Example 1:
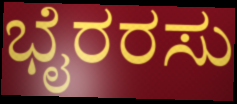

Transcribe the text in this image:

ಭೈರರಸು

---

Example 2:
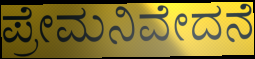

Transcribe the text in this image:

ಪ್ರೇಮನಿವೇದನೆ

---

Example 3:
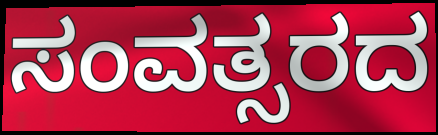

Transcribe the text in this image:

ಸಂವತ್ಸರದ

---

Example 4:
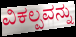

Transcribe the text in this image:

ವಿಕಲ್ಪವನ್ನು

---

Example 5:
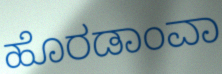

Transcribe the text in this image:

ಹೊರಡಾಂವಾ